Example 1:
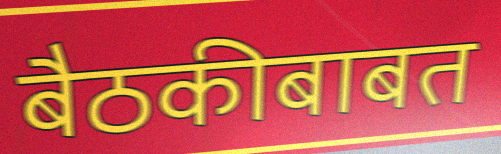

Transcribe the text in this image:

बैठकीबाबत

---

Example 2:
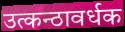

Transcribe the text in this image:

उत्कन्ठावर्धक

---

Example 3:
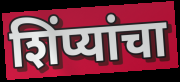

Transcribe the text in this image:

शिंप्यांचा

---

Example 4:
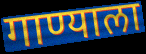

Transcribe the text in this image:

गाण्याला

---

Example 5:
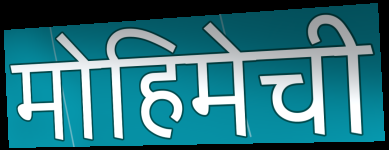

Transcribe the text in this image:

मोहिमेची